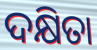
ଦକ୍ଷିତା